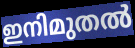
ഇനിമുതൽ